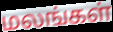
மலங்கள்